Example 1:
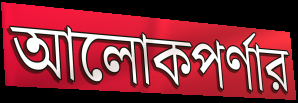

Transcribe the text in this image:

আলোকপর্ণার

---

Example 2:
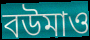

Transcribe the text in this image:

বউমাও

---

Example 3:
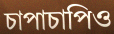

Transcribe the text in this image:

চাপাচাপিও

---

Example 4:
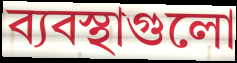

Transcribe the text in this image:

ব্যবস্থাগুলো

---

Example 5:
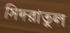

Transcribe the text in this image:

সিদরাতুল